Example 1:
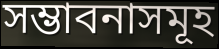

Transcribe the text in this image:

সম্ভাবনাসমূহ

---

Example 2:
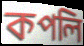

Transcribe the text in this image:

কপলি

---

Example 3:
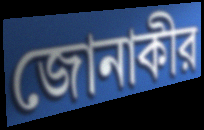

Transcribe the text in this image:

জোনাকীর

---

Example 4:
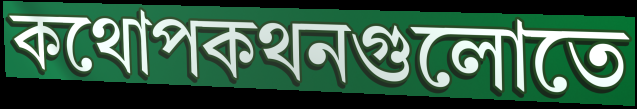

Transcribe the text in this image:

কথোপকথনগুলোতে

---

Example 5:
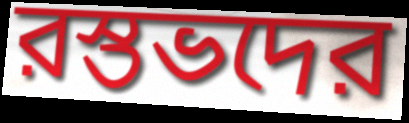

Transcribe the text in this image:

রস্তভদের